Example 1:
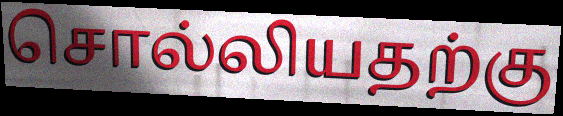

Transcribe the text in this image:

சொல்லியதற்கு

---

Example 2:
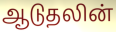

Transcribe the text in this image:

ஆடுதலின்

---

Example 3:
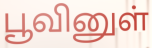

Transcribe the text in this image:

பூவினுள்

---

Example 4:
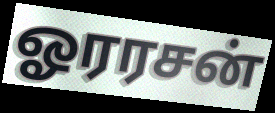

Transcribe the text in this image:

ஓரரசன்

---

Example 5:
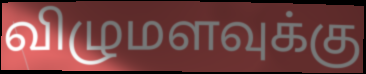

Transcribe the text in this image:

விழுமளவுக்கு